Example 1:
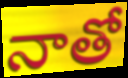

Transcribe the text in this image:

నాతో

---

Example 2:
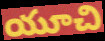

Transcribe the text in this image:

యూచి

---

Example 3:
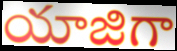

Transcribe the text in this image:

యాజిగా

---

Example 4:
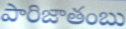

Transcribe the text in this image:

పారిజాతంబు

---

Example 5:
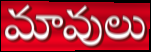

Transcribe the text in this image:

మావులు